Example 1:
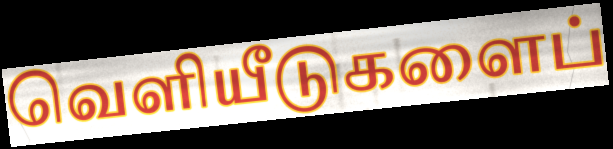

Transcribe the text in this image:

வெளியீடுகளைப்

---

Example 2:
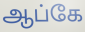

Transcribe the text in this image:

ஆப்கே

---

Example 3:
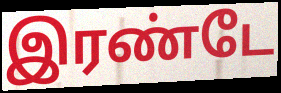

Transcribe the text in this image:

இரண்டே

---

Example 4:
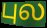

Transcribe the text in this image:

புல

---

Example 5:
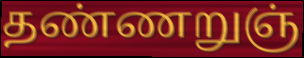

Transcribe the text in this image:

தண்ணறுஞ்